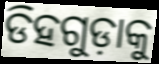
ଡିହଗୁଡ଼ାକୁ